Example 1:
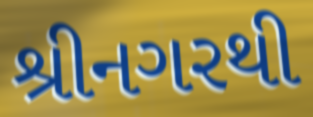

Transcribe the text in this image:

શ્રીનગરથી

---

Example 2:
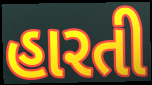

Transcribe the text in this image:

હારતી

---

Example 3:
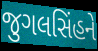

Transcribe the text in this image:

જુગલસિંહને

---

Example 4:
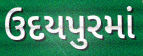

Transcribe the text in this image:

ઉદયપુરમાં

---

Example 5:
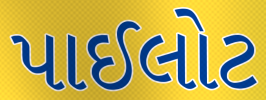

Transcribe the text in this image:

પાઈલોટ